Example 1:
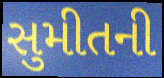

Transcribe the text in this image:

સુમીતની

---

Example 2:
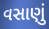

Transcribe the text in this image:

વસાણું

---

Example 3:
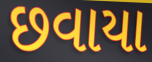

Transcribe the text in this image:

છવાયા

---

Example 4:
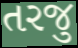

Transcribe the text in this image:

તરજુ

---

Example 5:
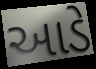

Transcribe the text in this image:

આડે